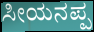
ಸೀಯನಪ್ಪ